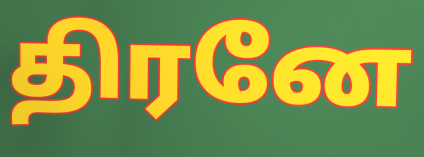
திரனே